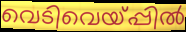
വെടിവെയ്പ്പിൽ